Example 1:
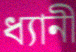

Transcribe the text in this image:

ধ্যানী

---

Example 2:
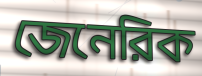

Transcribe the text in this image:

জেনেরিক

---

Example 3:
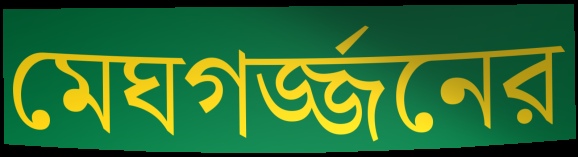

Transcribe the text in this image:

মেঘগর্জ্জনের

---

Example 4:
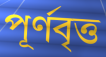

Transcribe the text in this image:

পূর্ণবৃত্ত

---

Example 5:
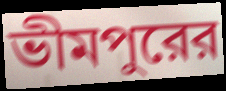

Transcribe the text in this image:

ভীমপুরের